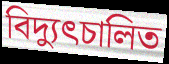
বিদ্যুৎচালিত